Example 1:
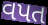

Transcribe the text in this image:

વપત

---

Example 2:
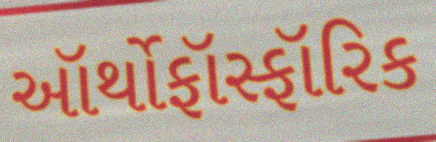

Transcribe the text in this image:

ઑર્થોફૉસ્ફૉરિક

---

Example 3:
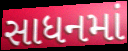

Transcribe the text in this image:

સાધનમાં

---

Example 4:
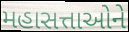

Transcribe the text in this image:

મહાસત્તાઓને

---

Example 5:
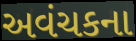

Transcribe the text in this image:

અવંચકના